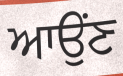
ਆਉਂਣ